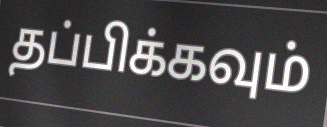
தப்பிக்கவும்